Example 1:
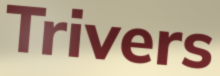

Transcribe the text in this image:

Trivers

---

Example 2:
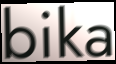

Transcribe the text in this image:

bika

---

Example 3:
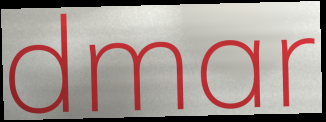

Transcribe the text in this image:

dmar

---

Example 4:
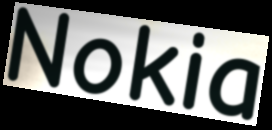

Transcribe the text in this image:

Nokia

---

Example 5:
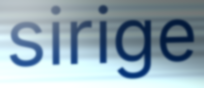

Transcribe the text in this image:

sirige